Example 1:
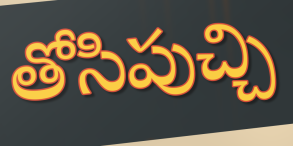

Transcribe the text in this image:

తోసిపుచ్చి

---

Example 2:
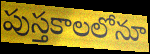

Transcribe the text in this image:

పుస్తకాలలోనూ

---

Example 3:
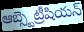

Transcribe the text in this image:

ఆబ్స్టెట్రీషియన్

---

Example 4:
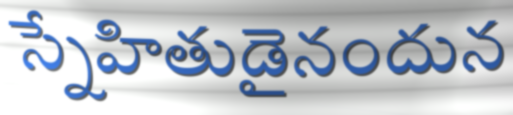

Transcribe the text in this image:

స్నేహితుడైనందున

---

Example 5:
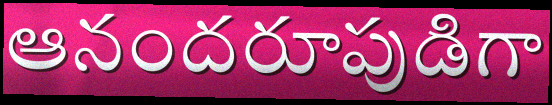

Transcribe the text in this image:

ఆనందరూపుడిగా